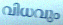
വിധവും